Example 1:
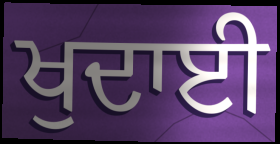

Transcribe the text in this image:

ਖੁਦਾਈ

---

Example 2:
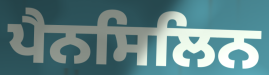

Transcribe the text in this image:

ਪੈਨਸਿਲਿਨ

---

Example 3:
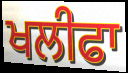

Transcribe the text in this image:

ਖਲੀਫਾ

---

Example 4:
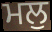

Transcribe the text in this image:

ਮਲੁ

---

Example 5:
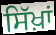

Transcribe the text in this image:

ਸਿੱਖ਼ਾਂ